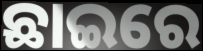
ଛାଇରେ